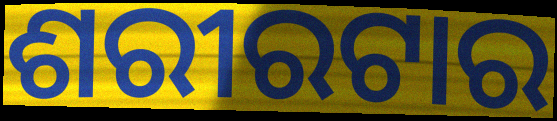
ଶରୀରଟାର